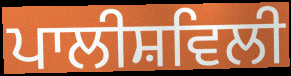
ਪਾਲੀਸ਼ਵਿਲੀ